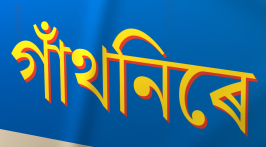
গাঁথনিৰে